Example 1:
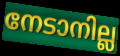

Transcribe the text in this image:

നേടാനില്ല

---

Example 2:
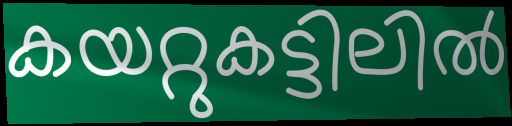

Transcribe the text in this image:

കയറ്റുകട്ടിലിൽ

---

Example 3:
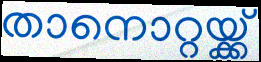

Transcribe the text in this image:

താനൊറ്റയ്ക്ക്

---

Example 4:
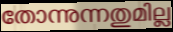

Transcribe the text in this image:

തോന്നുന്നതുമില്ല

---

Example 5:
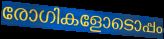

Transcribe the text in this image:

രോഗികളോടൊപ്പം